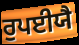
ਰੁਪਈਯੈ